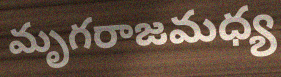
మృగరాజమధ్య